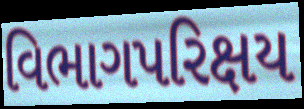
વિભાગપરિક્ષય